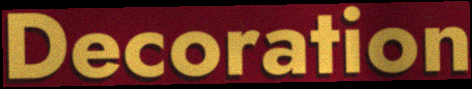
Decoration